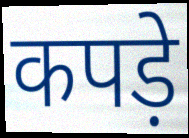
कपड़े